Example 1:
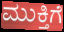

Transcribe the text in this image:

ಮುಕ್ತಿಗೆ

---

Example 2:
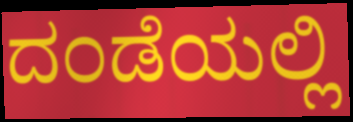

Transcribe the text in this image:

ದಂಡೆಯಲ್ಲಿ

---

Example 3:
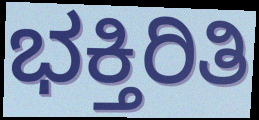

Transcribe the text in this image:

ಭಕ್ತಿರಿತಿ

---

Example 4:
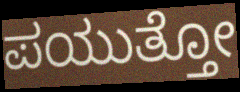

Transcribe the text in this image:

ಪಯುತ್ತೋ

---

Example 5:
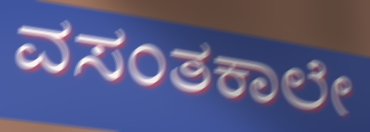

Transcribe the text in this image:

ವಸಂತಕಾಲೇ